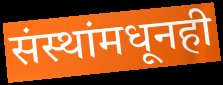
संस्थांमधूनही